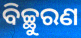
ବିଚ୍ଛୁରଣ